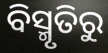
ବିସ୍ମୃତିରୁ